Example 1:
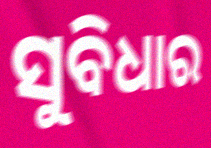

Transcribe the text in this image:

ସୁବିଧାର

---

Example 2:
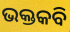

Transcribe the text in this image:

ଭକ୍ତକବି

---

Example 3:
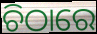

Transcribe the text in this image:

ଚିଠାରେ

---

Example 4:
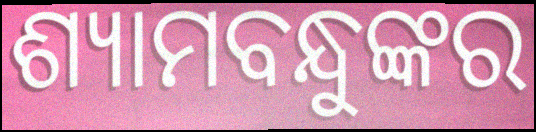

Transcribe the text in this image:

ଶ୍ୟାମବନ୍ଧୁଙ୍କର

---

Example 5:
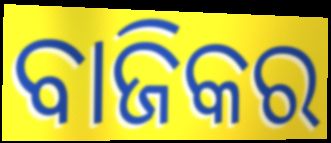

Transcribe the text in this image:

ବାଜିକର